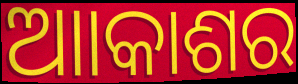
ଆାକାଶର